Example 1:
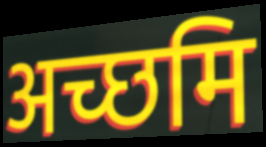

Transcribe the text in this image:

अच्छमि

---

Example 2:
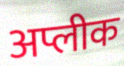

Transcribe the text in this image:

अप्लीक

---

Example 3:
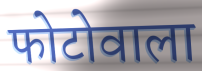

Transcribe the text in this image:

फोटोवाला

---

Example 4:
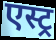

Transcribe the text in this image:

एस्ट्र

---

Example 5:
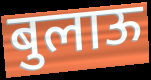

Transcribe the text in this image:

बुलाऊ